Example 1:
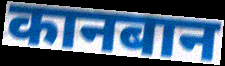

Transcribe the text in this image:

कानबान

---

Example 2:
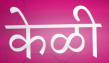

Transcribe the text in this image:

केळी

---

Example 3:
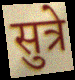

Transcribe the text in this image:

सुत्रे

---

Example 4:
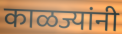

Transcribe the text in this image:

काळज्यांनी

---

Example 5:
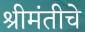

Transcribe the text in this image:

श्रीमंतीचे